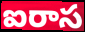
ఐరాస